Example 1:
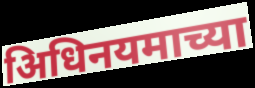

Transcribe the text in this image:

अिधिनयमाच्या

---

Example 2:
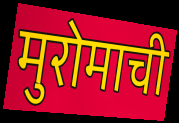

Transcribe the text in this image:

मुरोमाची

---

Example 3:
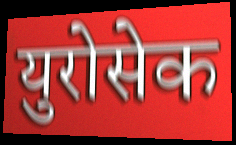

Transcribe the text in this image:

युरोसेक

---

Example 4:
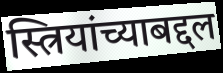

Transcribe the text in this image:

स्त्रियांच्याबद्दल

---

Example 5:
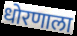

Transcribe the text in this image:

धोरणाला